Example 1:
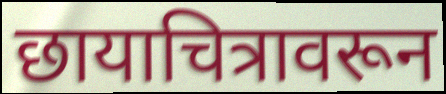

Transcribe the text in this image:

छायाचित्रावरून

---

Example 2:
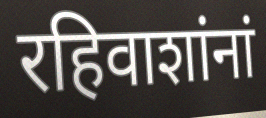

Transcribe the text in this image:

रहिवाशांनां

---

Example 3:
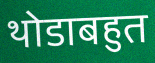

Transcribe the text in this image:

थोडाबहुत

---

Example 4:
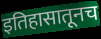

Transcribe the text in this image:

इतिहासातूनच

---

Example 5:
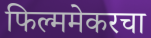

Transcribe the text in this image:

फिल्ममेकरचा